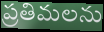
ప్రతిమలను